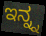
ಇನ್ನ್ನ